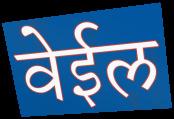
वेईल